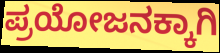
ಪ್ರಯೋಜನಕ್ಕಾಗಿ